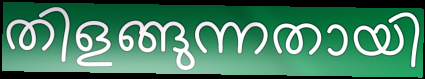
തിളങ്ങുന്നതായി